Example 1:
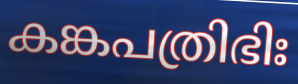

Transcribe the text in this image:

കങ്കപത്രിഭിഃ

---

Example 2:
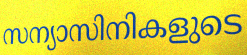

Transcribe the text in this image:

സന്യാസിനികളുടെ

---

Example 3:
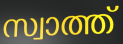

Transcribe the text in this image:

സ്വാത്ത്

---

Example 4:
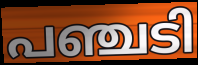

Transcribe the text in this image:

പഞ്ചടി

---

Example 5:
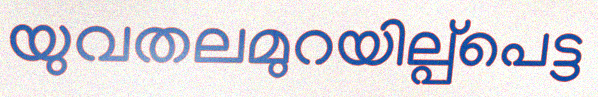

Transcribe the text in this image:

യുവതലമുറയില്പ്പെട്ട